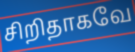
சிறிதாகவே